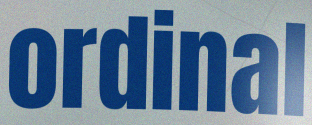
ordinal